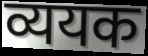
व्ययक